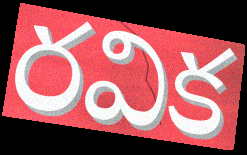
రవిక